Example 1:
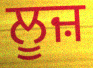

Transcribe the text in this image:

ਲੂਜ਼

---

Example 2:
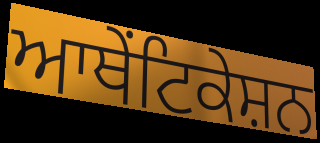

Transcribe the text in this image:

ਆਥੇਂਟਿਕੇਸ਼ਨ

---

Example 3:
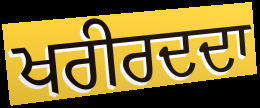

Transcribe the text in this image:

ਖਰੀਰਦਦਾ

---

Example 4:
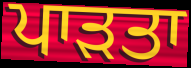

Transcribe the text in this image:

ਪਾੜਤਾ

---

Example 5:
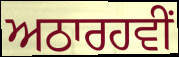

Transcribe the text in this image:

ਅਠਾਰਹਵੀਂ